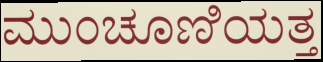
ಮುಂಚೂಣಿಯತ್ತ